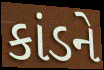
કાંડને